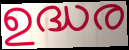
ഉദ്ധര